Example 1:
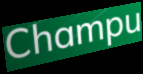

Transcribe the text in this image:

Champu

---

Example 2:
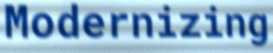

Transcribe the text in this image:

Modernizing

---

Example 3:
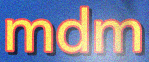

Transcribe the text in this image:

mdm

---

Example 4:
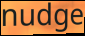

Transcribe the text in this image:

nudge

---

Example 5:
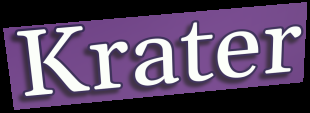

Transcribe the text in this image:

Krater